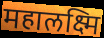
महालक्ष्मि